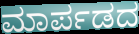
ಮಾರ್ಪಡದ